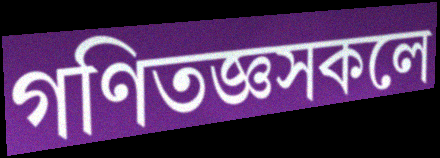
গণিতজ্ঞসকলে